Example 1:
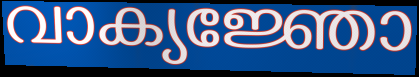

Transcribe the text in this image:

വാക്യജ്ഞോ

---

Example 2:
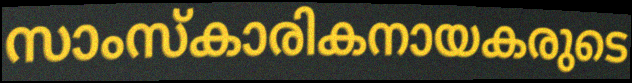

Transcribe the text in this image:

സാംസ്കാരികനായകരുടെ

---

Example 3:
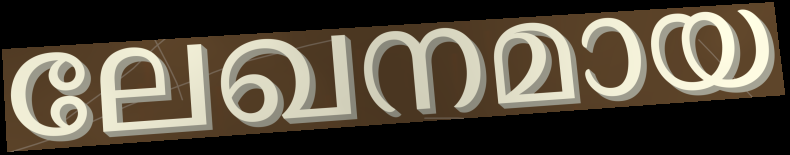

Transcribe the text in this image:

ലേഖനമായ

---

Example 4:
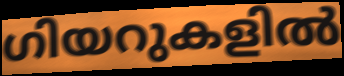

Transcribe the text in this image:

ഗിയറുകളിൽ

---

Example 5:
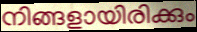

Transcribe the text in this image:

നിങ്ങളായിരിക്കും